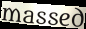
massed